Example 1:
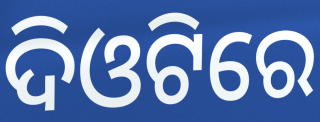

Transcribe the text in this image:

ଦିଓଟିରେ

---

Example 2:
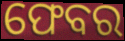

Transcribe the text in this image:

ଫେବର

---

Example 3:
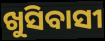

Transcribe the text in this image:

ଖୁସିବାସୀ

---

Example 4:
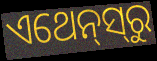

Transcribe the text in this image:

ଏଥେନ୍‌ସ୍‌ରୁ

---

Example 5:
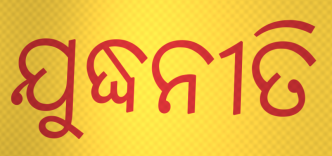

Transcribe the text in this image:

ଯୁଦ୍ଧନୀତି